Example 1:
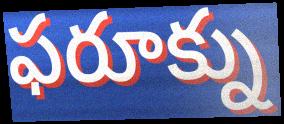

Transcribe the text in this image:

ఫరూక్ను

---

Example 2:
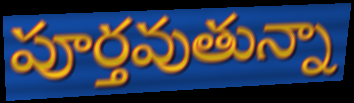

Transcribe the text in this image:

పూర్తవుతున్నా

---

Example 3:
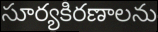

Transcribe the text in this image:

సూర్యకిరణాలను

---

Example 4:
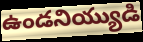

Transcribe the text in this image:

ఉండనియ్యుడి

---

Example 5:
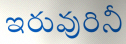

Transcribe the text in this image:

ఇరువురినీ